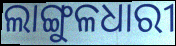
ଲାଙ୍ଗୁଳଧାରୀ